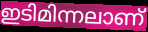
ഇടിമിന്നലാണ്